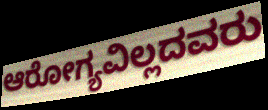
ಆರೋಗ್ಯವಿಲ್ಲದವರು